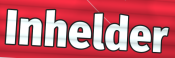
Inhelder